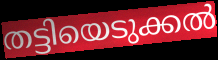
തട്ടിയെടുക്കൽ